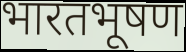
भारतभूषण